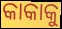
କାକାକୁ